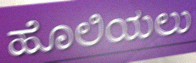
ಹೊಲಿಯಲು